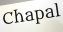
Chapal